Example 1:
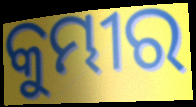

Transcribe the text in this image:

କୁମ୍ଭୀର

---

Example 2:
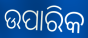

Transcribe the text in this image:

ଉପାରିକ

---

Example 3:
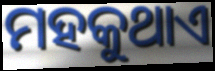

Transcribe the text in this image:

ମହକୁଥାଏ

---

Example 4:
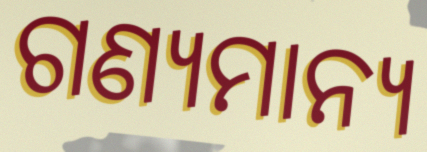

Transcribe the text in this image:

ଗଣ୍ୟମାନ୍ୟ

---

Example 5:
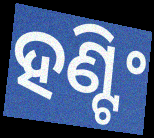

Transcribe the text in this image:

ହଣ୍ଟିଂ